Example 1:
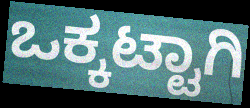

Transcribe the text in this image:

ಒಕ್ಕಟ್ಟಾಗಿ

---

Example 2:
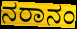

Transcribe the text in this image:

ನರಾನಂ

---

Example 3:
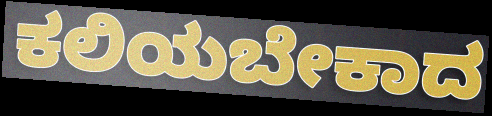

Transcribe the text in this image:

ಕಲಿಯಬೇಕಾದ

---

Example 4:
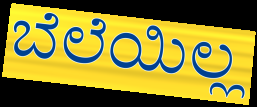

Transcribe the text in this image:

ಬೆಲೆಯಿಲ್ಲ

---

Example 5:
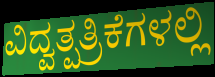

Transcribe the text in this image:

ವಿದ್ವತ್ಪತ್ರಿಕೆಗಳಲ್ಲಿ